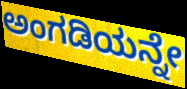
ಅಂಗಡಿಯನ್ನೇ